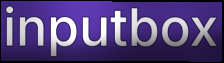
inputbox